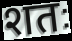
शतः